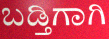
ಬಡ್ತಿಗಾಗಿ